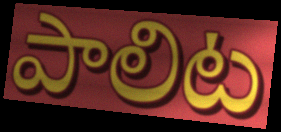
పాలిట